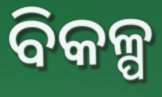
ବିକଳ୍ପ